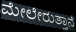
ಮೇಲೇರುತ್ತಾನೆ